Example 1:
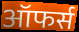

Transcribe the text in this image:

ऑफर्स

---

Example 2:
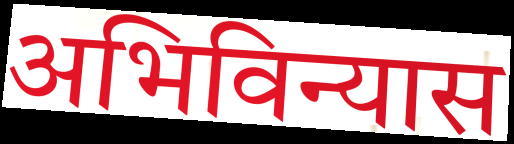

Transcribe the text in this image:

अभिविन्यास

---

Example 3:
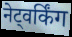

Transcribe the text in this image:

नेट्वर्किंग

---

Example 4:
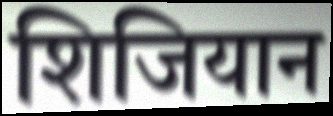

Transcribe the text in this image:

शिजियान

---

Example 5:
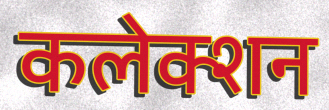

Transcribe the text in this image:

कलेक्शन